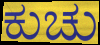
ಕುಚು